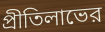
প্রীতিলাভের